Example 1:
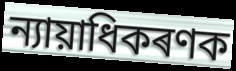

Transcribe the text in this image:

ন্যায়াধিকৰণক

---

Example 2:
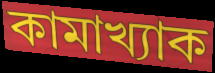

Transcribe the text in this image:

কামাখ্যাক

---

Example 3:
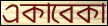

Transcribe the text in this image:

একাবেকা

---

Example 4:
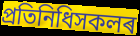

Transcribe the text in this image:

প্ৰতিনিধিসকলৰ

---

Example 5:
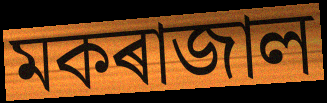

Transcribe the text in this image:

মকৰাজাল